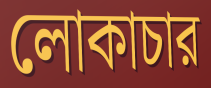
লোকাচার